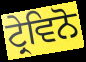
ਟ੍ਰੇਵਿਨੋ